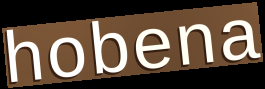
hobena